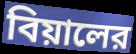
বিয়ালের